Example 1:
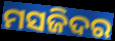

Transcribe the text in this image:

ମସଜିଦର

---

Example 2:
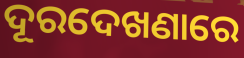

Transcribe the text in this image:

ଦୂରଦେଖଣାରେ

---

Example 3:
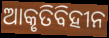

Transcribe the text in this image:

ଆକୃତିବିହୀନ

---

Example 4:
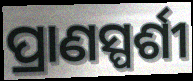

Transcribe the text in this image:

ପ୍ରାଣସ୍ପର୍ଶୀ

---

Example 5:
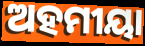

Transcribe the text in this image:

ଅହମୀୟା